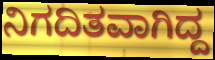
ನಿಗದಿತವಾಗಿದ್ದ